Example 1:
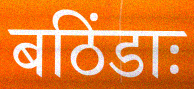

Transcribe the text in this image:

बठिंडाः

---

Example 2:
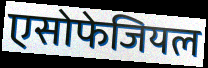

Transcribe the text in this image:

एसोफेजियल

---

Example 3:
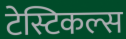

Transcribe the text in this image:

टेस्टिकल्स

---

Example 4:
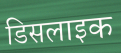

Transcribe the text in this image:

डिसलाइक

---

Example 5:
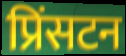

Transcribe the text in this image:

प्रिंसटन